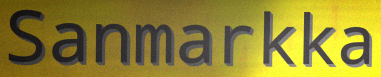
Sanmarkka